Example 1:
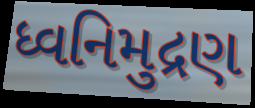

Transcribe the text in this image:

ધ્વનિમુદ્રણ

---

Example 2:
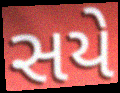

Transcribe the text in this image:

સયે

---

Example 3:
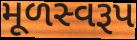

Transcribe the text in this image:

મૂળસ્વરૂપ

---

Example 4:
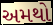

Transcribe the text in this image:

અમથો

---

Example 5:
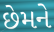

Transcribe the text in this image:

છેમને